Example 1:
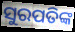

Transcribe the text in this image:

ସୁରପତିଙ୍କ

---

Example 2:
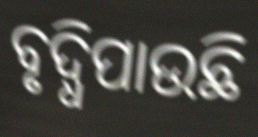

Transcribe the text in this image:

ବୃଦ୍ଧିପାଉଛି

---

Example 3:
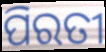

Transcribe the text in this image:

ପିରତୀ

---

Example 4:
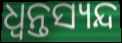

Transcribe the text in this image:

ଧ୍ଵନ୍ତସ୍ୟନ୍ଦ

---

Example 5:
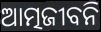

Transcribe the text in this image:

ଆତ୍ମଜୀବନି